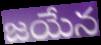
జయేన